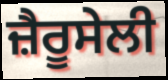
ਜ਼ੈਰੂਸੇਲੀ